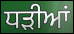
ਧੜੀਆਂ